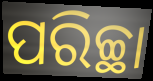
ପରିଚ୍ଛା